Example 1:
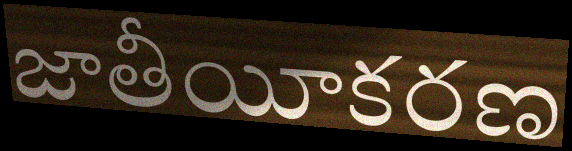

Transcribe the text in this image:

జాతీయీకరణ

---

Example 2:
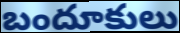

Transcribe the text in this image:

బందూకులు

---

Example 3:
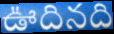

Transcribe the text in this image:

ఊదినది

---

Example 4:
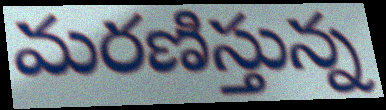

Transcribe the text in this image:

మరణిస్తున్న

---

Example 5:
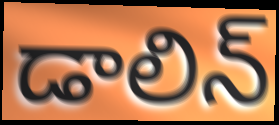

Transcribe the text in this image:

డాలిన్